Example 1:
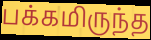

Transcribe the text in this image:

பக்கமிருந்த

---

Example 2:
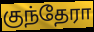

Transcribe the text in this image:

குந்தேரா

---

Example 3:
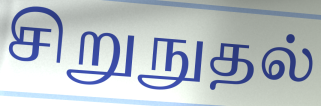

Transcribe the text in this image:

சிறுநுதல்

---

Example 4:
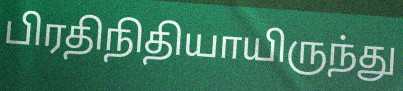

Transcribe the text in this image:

பிரதிநிதியாயிருந்து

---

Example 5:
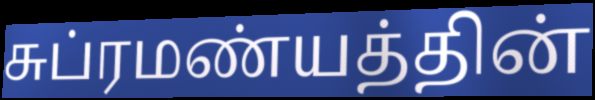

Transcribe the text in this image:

சுப்ரமண்யத்தின்